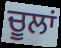
ਚੂਲਾਂ